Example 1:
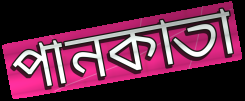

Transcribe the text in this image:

পানকাতা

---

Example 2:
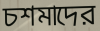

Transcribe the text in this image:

চশমাদের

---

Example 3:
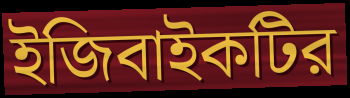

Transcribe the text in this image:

ইজিবাইকটির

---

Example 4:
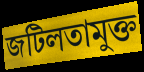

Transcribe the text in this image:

জটিলতামুক্ত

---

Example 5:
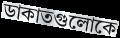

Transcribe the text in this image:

ডাকাতগুলোকে